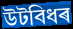
উটবিধৰ